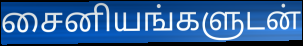
சைனியங்களுடன்